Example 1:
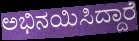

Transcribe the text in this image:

ಅಭಿನಯಿಸಿದ್ದಾರೆ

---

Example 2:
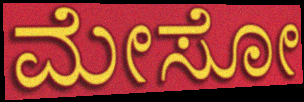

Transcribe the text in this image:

ಮೇಸೋ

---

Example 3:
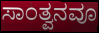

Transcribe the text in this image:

ಸಾಂತ್ವನವೂ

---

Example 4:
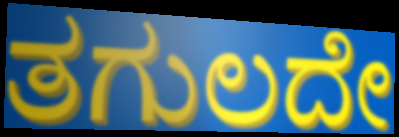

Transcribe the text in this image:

ತಗುಲದೇ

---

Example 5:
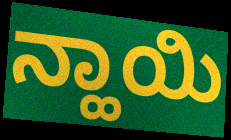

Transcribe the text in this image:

ನ್ಹಾಯಿ